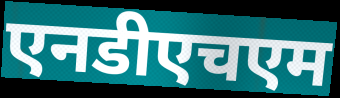
एनडीएचएम